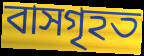
বাসগৃহত